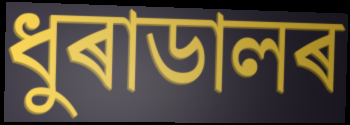
ধুৰাডালৰ